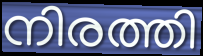
നിരത്തി